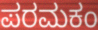
ಪರಮಕಂ